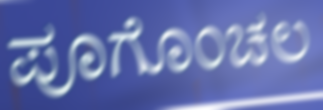
ಪೂಗೊಂಚಲ